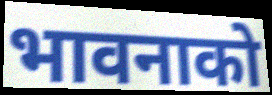
भावनाको